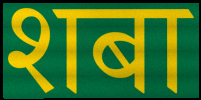
शबा